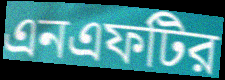
এনএফটির